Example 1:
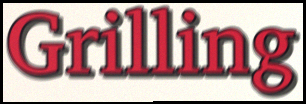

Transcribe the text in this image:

Grilling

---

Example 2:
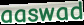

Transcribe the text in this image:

aaswad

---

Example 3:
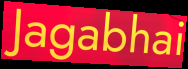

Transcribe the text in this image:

Jagabhai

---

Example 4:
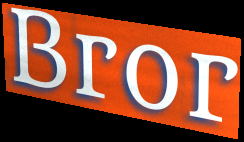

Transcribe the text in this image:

Bror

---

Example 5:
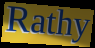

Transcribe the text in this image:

Rathy